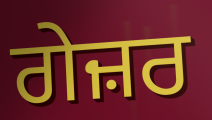
ਗੇਜ਼ਰ